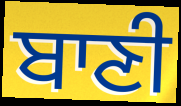
ਬਾਣੀ